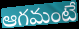
ఆగమంటే